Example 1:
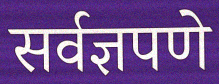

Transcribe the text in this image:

सर्वज्ञपणे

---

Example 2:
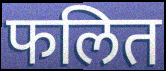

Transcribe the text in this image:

फलित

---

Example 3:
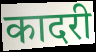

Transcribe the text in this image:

कादरी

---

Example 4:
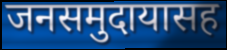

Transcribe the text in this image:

जनसमुदायासह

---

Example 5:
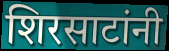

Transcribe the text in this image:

शिरसाटांनी